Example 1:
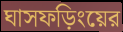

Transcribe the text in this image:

ঘাসফড়িংয়ের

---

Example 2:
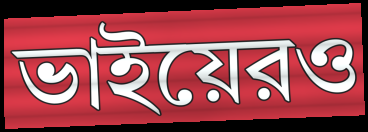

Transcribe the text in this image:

ভাইয়েরও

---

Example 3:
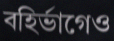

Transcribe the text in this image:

বহির্ভাগেও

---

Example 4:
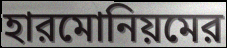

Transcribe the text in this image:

হারমোনিয়মের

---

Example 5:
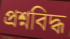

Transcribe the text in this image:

প্রশ্নবিদ্ধ